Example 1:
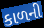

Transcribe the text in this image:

કાળની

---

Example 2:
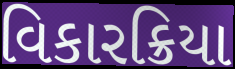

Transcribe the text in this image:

વિકારક્રિયા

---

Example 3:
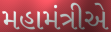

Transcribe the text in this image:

મહામંત્રીએ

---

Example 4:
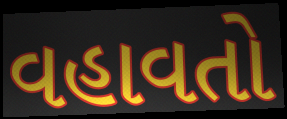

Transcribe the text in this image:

વહાવતો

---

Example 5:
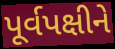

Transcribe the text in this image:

પૂર્વપક્ષીને